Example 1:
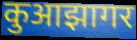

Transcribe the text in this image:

कुआझागर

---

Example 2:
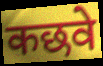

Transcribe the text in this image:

कछवे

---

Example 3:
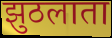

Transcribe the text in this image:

झुठलाता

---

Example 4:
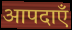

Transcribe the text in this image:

आपदाएँ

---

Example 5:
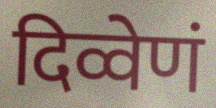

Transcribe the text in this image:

दिव्वेणं